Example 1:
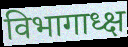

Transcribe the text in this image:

विभागाध्क्ष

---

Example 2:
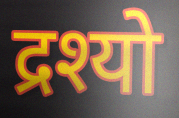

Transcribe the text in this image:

द्रश्यो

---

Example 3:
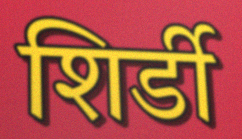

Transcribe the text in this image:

शिर्डी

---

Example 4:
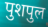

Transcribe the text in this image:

पुशपुल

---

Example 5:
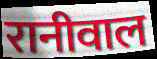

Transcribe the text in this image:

रानीवाल